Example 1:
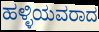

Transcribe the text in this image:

ಹಳ್ಳಿಯವರಾದ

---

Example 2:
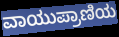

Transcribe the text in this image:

ವಾಯುಪ್ರಾಣಿಯ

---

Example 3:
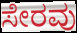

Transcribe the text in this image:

ಸೇರವು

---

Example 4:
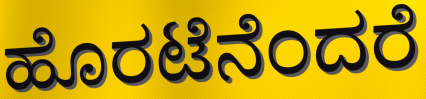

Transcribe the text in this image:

ಹೊರಟೆನೆಂದರೆ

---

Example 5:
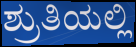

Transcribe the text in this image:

ಶ್ರುತಿಯಲ್ಲಿ